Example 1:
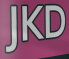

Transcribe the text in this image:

JKD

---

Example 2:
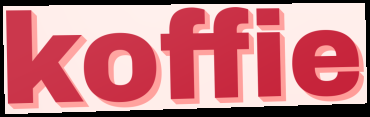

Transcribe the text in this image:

koffie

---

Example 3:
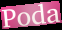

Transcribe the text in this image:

Poda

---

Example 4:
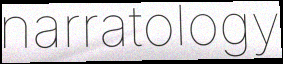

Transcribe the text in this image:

narratology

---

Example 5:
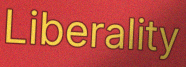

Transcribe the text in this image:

Liberality